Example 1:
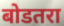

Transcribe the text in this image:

बोडतरा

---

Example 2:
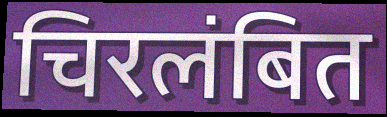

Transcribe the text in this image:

चिरलंबित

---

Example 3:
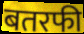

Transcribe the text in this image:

बतरफी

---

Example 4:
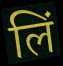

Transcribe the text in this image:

लिं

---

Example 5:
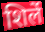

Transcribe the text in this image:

शिर्ले